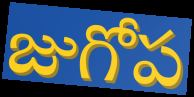
జుగోప